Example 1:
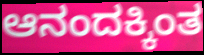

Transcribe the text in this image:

ಆನಂದಕ್ಕಿಂತ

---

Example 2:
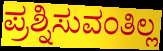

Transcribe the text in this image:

ಪ್ರಶ್ನಿಸುವಂತಿಲ್ಲ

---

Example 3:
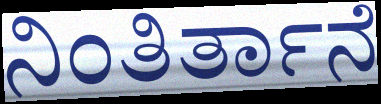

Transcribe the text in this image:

ನಿಂತಿರ್ತಾನೆ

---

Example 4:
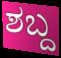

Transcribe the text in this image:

ಶಬ್ದ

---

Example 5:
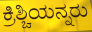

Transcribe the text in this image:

ಕ್ರಿಶ್ಚಿಯನ್ನರು